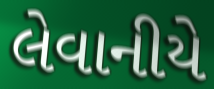
લેવાનીયે